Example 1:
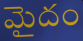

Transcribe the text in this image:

మైదం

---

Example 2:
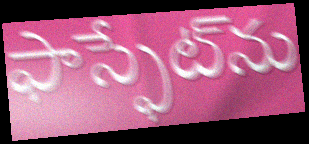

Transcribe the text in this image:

ఫాస్ఫేట్‌ను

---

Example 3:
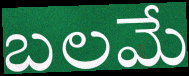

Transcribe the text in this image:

బలమే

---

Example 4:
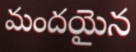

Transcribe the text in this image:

మందయైన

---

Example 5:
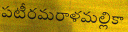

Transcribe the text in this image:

పటీరమరాళమల్లికా